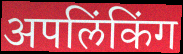
अपलिंकिंग